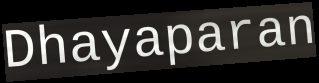
Dhayaparan